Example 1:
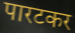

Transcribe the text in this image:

पारटकर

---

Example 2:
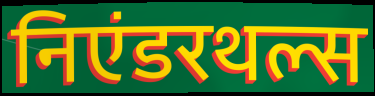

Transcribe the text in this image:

निएंडरथल्स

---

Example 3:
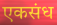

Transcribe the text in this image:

एकसंध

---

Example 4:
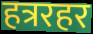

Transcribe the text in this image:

हत्ररहर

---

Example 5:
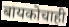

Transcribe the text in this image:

बायकोचाही